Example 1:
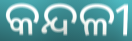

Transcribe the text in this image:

କନ୍ଦଳୀ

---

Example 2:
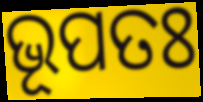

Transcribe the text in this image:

ଭୂପତଃ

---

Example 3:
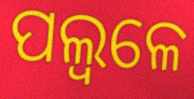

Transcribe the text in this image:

ପଲ୍ୱଳେ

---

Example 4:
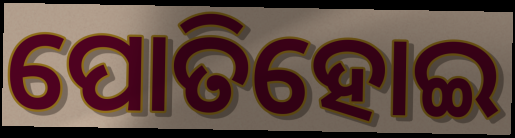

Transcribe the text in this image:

ପୋତିହୋଇ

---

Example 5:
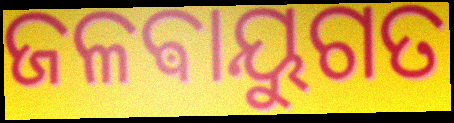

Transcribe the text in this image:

ଜଳଵାୟୁଗତ